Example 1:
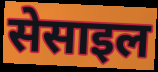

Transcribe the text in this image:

सेसाइल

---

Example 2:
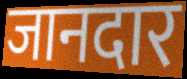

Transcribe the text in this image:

जानदार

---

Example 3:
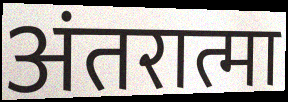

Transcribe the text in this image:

अंतरात्मा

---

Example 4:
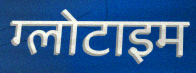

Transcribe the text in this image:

ग्लोटाइम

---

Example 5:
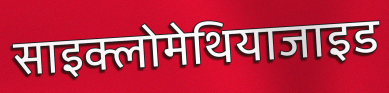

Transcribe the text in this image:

साइक्लोमेथियाजाइड